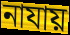
নাযায়